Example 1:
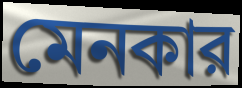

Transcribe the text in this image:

মেনকার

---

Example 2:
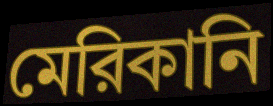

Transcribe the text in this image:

মেরিকানি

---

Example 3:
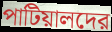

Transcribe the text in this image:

পাটিয়ালদের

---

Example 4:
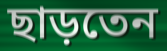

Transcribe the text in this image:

ছাড়তেন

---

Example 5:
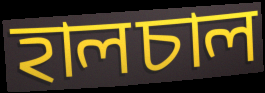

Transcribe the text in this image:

হালচাল